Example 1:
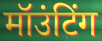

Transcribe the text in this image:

मॉउंटिंग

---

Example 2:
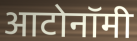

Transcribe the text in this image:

आटोनॉमी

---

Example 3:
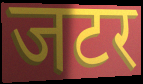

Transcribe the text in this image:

जटर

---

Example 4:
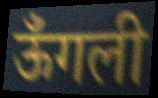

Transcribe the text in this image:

ऊँगली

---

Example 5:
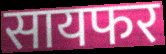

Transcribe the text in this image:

सायफर